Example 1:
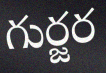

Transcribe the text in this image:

గుర్జర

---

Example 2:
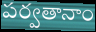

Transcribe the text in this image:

పర్వతానాం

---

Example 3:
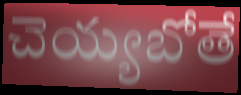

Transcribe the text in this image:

చెయ్యబోతే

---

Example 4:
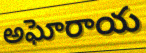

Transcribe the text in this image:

అఘోరాయ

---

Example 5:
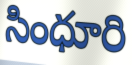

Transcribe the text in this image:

సింధూరి